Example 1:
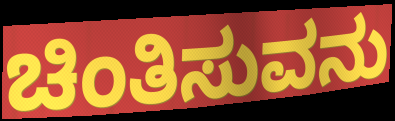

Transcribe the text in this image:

ಚಿಂತಿಸುವನು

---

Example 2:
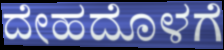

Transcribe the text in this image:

ದೇಹದೊಳಗೆ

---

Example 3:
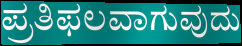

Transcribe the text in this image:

ಪ್ರತಿಫಲವಾಗುವುದು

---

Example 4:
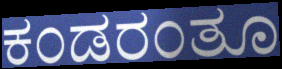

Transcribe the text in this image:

ಕಂಡರಂತೂ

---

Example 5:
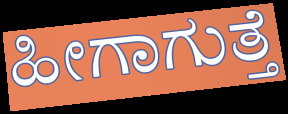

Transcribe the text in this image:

ಹೀಗಾಗುತ್ತೆ